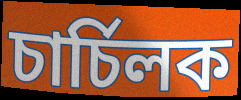
চাৰ্চিলক